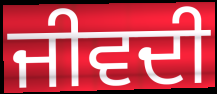
ਜੀਵਦੀ